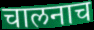
चालनाच